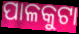
ପାଳକୁଟା